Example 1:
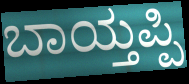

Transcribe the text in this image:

ಬಾಯ್ತಪ್ಪಿ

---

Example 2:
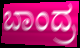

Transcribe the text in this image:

ಬಾಂದ್ರ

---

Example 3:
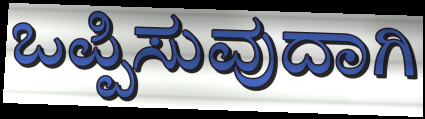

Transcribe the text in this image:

ಒಪ್ಪಿಸುವುದಾಗಿ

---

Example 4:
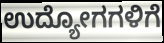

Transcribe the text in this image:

ಉದ್ಯೋಗಗಳಿಗೆ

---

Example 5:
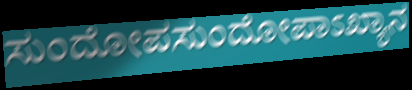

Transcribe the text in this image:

ಸುಂದೋಪಸುಂದೋಪಾಽಖ್ಯಾನ